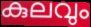
കുലവും